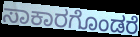
ಸಾಕಾರಗೊಂಡರೆ